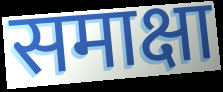
समाक्षा